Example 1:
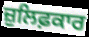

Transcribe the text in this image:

ਜ਼ੁਲਿਫ਼ਕਾਰ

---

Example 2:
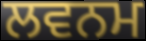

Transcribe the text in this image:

ਲਵਨਮ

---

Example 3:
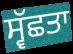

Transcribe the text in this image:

ਸ੍ਵੱਛਤਾ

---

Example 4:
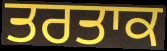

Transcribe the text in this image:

ਤਰਤਾਕ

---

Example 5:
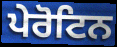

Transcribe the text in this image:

ਪੇਰੋਟਿਨ